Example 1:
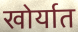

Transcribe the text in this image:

खोर्यात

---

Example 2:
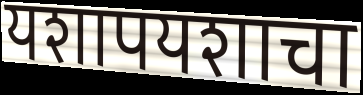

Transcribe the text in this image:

यशापयशाचा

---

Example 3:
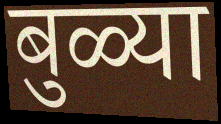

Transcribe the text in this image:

बुळ्या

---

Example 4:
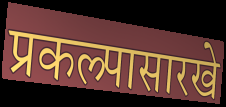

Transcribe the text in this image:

प्रकल्पासारखे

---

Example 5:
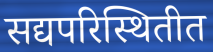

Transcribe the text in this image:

सद्यपरिस्थितीत